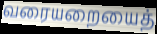
வரையறையைத்